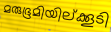
മരുഭൂമിയില്ക്കൂടി